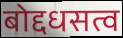
बोद्दधसत्व